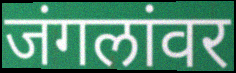
जंगलांवर